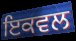
ਇਕਵਲ